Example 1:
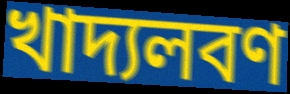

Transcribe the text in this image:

খাদ্যলবণ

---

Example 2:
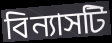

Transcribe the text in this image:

বিন্যাসটি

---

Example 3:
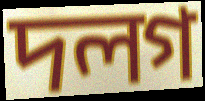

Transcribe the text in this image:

দলগ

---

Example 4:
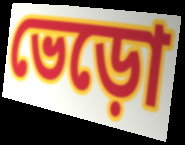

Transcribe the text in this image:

ভেড়ো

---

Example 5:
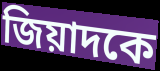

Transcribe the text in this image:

জিয়াদকে